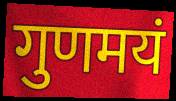
गुणमयं